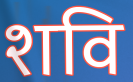
शवि